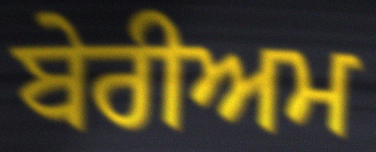
ਬੇਰੀਅਮ